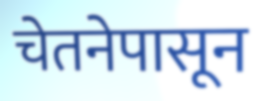
चेतनेपासून